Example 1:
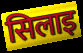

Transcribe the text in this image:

सिलाइ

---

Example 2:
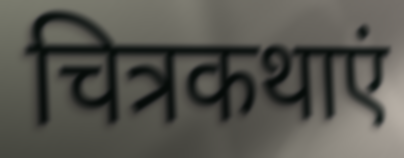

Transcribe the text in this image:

चित्रकथाएं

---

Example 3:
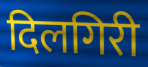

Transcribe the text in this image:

दिलगिरी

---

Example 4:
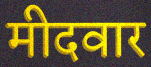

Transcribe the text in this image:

मीदवार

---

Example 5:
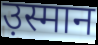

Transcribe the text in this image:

उ़स्मान